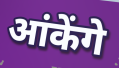
आंकेंगे